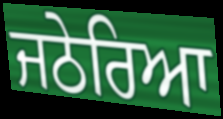
ਜਠੇਰਿਆ